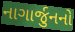
નાગાર્જુનનો